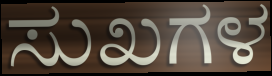
ಸುಖಗಳ